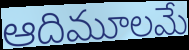
ఆదిమూలమే